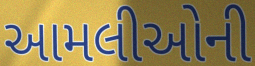
આમલીઓની